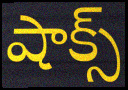
షాక్స్